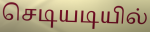
செடியடியில்